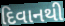
દિવાનથી